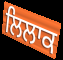
ਲਿਲਾਕ